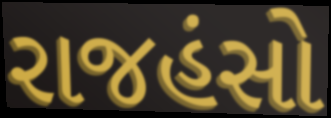
રાજહંસો